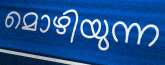
മൊഴിയുന്ന